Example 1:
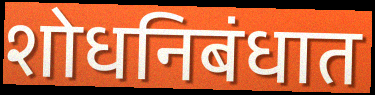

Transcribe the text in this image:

शोधनिबंधात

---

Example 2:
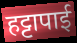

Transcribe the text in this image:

हट्टापाई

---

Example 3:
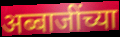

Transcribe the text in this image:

अब्बाजींच्या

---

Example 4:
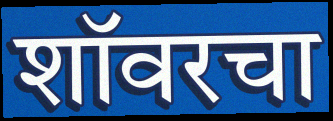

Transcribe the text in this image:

शॉवरचा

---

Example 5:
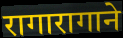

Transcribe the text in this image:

रागारागाने